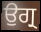
ਉਗ੍ਰ